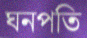
ঘনপতি